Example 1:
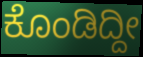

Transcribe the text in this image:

ಕೊಂಡಿದ್ದೀ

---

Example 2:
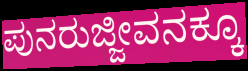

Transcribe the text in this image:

ಪುನರುಜ್ಜೀವನಕ್ಕೂ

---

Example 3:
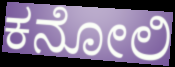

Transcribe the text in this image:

ಕನೋಲಿ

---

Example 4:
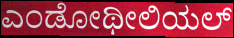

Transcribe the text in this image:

ಎಂಡೋಥೀಲಿಯಲ್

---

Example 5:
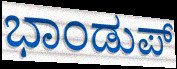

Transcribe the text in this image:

ಭಾಂಡುಪ್